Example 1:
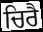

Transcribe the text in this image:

ਚਿਰੈ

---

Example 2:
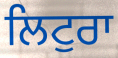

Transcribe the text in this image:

ਲਿਟੁਰਾ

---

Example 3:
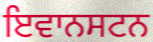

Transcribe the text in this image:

ਇਵਾਨਸਟਨ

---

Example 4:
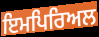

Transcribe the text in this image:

ਇਮਪਿਰਿਅਲ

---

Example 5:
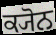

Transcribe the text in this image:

ਕ੍ਯੋਨ